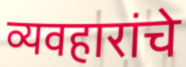
व्यवहारांचे